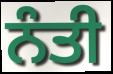
ਨੰਤੀ